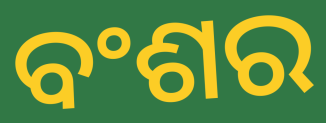
ବଂଶର